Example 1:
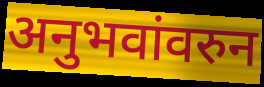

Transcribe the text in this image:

अनुभवांवरुन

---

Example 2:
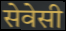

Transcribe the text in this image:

सेवेसी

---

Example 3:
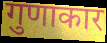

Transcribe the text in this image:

गुणाकार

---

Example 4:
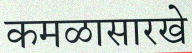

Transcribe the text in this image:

कमळासारखे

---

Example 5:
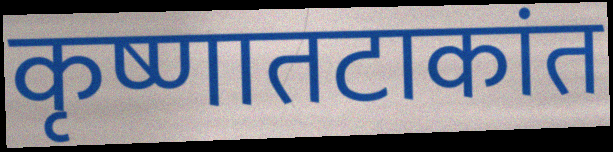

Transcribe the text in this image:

कृष्णातटाकांत